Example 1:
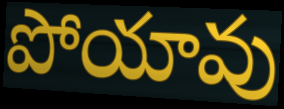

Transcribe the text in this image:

పోయావు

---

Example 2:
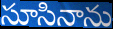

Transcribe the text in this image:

సూసినాను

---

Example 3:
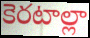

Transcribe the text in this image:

కెరటాల్లా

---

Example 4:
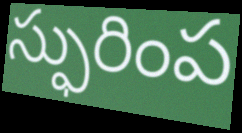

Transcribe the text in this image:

స్ఫురింప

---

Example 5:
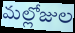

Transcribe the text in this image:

మల్లోజుల